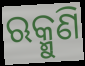
ଋକ୍ମୁଣି